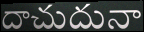
దాచుదునా